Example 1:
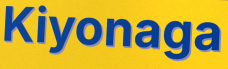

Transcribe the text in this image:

Kiyonaga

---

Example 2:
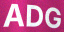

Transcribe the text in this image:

ADG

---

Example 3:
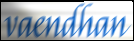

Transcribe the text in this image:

vaendhan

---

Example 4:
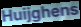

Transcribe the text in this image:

Huijghens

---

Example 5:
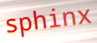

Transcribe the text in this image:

sphinx